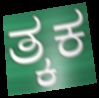
ತ್ಕಕ